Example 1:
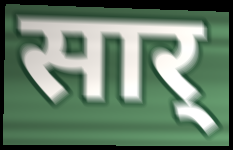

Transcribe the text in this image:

सार्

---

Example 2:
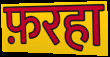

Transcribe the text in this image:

फ़रहा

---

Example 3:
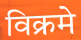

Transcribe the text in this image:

विक्रमे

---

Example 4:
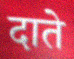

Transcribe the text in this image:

दाते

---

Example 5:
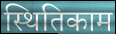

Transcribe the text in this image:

स्थितिकाम